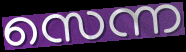
സെന്ന